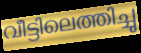
വീട്ടിലെത്തിച്ചു